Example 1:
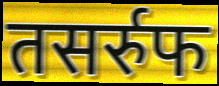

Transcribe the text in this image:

तसर्रुफ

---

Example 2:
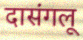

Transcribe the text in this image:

दासंगलू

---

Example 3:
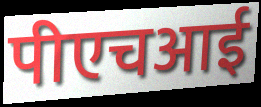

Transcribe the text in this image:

पीएचआई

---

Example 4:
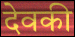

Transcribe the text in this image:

देवकी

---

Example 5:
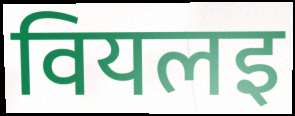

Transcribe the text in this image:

वियलइ